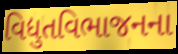
વિદ્યુતવિભાજનના